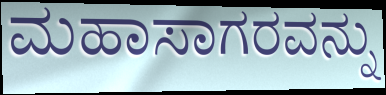
ಮಹಾಸಾಗರವನ್ನು